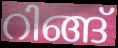
റിങ്ങ്